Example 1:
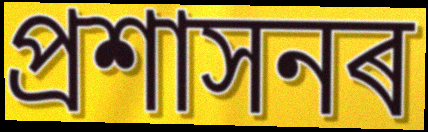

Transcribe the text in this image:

প্ৰশাসনৰ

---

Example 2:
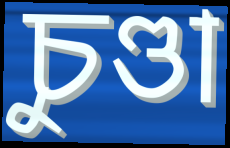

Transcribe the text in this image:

চুণ্ডা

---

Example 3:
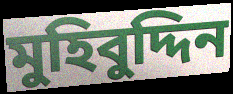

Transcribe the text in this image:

মুহিবুদ্দিন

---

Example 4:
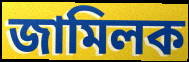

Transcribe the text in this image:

জামিলক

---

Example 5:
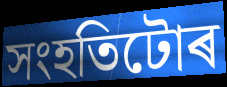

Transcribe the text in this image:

সংহতিটোৰ